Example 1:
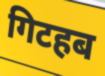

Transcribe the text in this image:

गिटहब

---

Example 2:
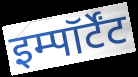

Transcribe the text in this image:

इम्पॉर्टेंट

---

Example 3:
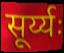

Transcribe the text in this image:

सूर्य्यः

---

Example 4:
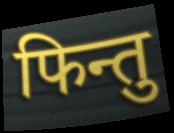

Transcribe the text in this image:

फिन्तु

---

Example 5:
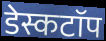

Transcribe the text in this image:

डेस्‍कटॉप